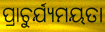
ପ୍ରାଚୁର୍ଯ୍ୟମୟତା